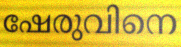
ഷേരുവിനെ